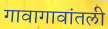
गावागावांतली